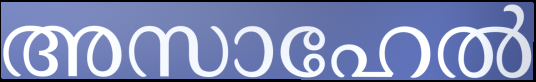
അസാഹേൽ